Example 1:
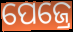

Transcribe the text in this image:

ପେଜ୍ରେ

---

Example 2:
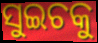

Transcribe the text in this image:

ସୁଇଚକୁ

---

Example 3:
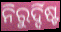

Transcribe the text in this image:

ନିରୁର୍ଦ୍ଦିଷ୍ଟ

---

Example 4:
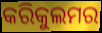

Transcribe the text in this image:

କରିକୁଲମର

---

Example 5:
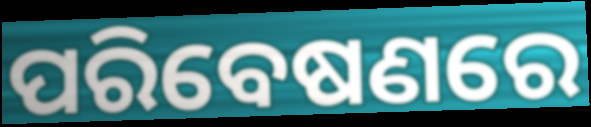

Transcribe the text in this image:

ପରିବେଷଣରେ